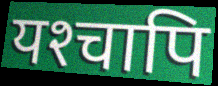
यश्चापि